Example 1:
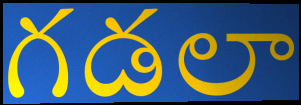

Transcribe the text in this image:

గడలా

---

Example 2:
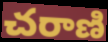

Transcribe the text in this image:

చరాణి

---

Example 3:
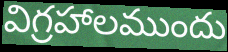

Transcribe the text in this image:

విగ్రహాలముందు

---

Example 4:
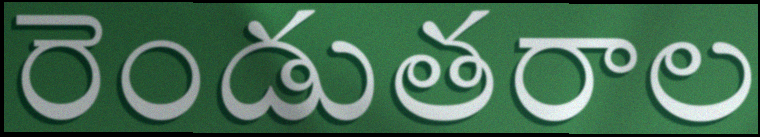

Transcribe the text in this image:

రెండుతరాల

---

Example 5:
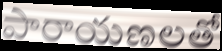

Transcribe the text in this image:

పారాయణలతో